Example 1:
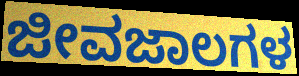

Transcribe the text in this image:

ಜೀವಜಾಲಗಳ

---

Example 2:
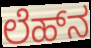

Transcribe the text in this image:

ಲೆಹ್‌ನ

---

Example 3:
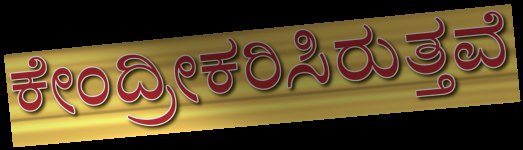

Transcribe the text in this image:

ಕೇಂದ್ರೀಕರಿಸಿರುತ್ತವೆ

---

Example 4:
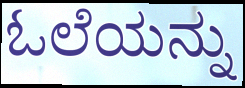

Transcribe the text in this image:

ಓಲೆಯನ್ನು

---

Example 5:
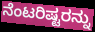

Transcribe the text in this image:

ನೆಂಟರಿಷ್ಟರನ್ನು